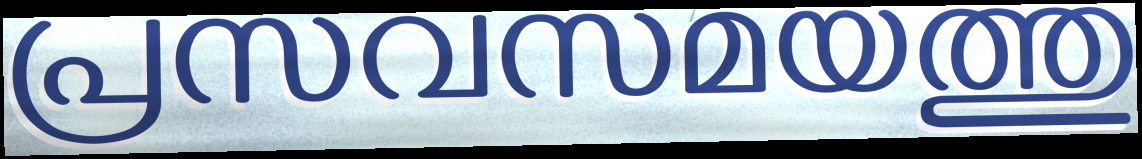
പ്രസവസമയത്തു